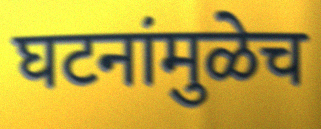
घटनांमुळेच